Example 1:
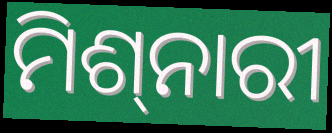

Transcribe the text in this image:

ମିଶ୍‍ନାରୀ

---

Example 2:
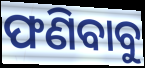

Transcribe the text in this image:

ଫଣିବାବୁ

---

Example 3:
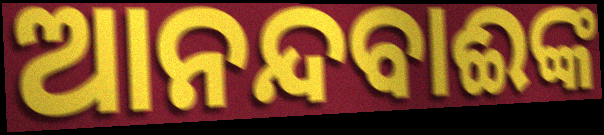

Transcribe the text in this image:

ଆନନ୍ଦବାଈଙ୍କ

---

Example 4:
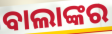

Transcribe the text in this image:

ବାଲାଙ୍କର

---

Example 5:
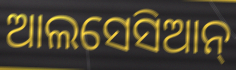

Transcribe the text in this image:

ଆଲସେସିଆନ୍